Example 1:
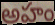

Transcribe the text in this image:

అహం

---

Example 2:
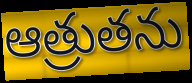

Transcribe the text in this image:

ఆత్రుతను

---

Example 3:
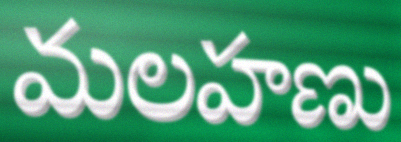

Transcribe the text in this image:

మలహణు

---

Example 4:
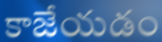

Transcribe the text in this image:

కాజేయడం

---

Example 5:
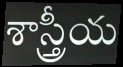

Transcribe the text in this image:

శాస్త్రీయ